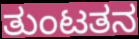
ತುಂಟತನ